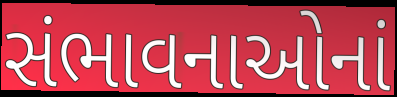
સંભાવનાઓનાં